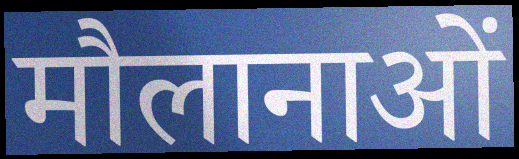
मौलानाओं